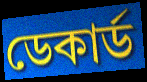
ডেকার্ড